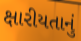
ક્ષારીયતાનું